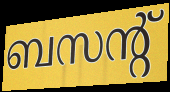
ബസന്റ്